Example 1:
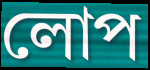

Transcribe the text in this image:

লোপ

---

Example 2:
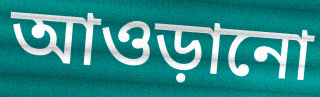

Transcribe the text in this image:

আওড়ানো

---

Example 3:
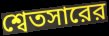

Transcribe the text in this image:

শ্বেতসারের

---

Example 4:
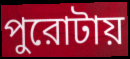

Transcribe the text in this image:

পুরোটায়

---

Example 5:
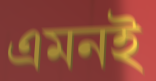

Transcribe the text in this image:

এমনই